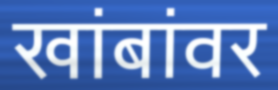
खांबांवर